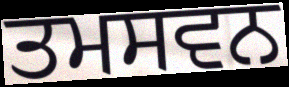
ਤਮਸਵਨ